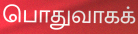
பொதுவாகக்